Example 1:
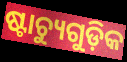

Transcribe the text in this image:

ଷ୍ଟାଚ୍ୟୁଗୁଡ଼ିକ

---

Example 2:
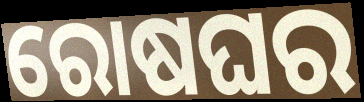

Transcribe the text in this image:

ରୋଷଘର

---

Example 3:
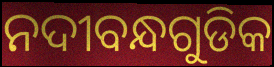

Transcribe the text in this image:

ନଦୀବନ୍ଧଗୁଡିକ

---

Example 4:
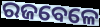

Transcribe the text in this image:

ରଜବେଳେ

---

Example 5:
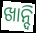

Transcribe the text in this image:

ଖାନ୍ଦି